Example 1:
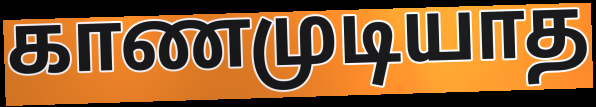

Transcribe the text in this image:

காணமுடியாத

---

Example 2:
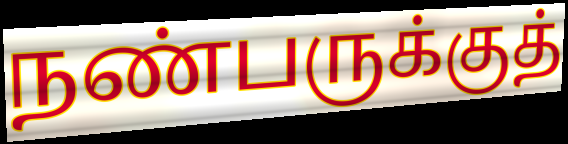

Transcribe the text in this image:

நண்பருக்குத்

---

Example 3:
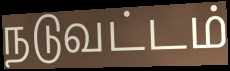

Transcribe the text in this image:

நடுவட்டம்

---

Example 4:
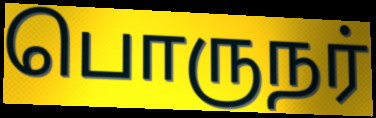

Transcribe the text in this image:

பொருநர்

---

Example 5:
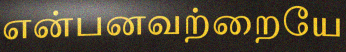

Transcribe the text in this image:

என்பனவற்றையே